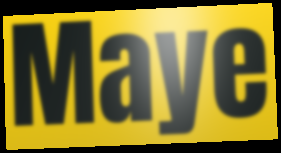
Maye